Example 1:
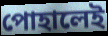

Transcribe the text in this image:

পোহালেই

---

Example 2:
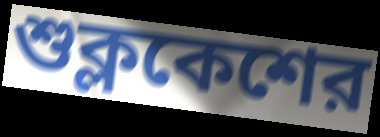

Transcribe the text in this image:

শুক্লকেশের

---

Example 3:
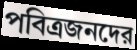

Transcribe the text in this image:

পবিত্রজনদের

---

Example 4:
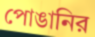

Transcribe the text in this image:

পোঙানির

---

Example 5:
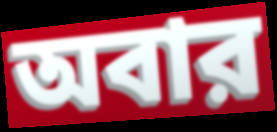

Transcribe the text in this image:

অবার